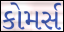
કોમર્સ